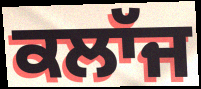
ਕਲਾੱਜ